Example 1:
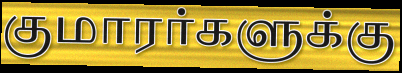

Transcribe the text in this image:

குமாரர்களுக்கு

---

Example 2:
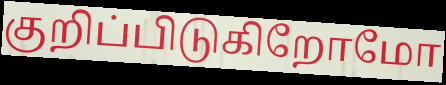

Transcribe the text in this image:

குறிப்பிடுகிறோமோ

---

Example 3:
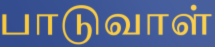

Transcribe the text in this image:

பாடுவாள்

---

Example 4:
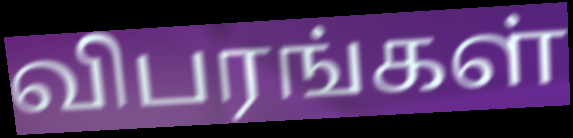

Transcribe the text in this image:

விபரங்கள்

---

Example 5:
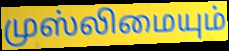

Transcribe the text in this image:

முஸ்லிமையும்